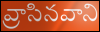
వ్రాసినవాని